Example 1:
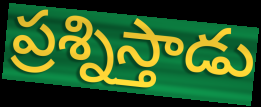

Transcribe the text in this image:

ప్రశ్నిస్తాడు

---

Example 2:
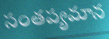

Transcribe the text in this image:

సంతప్యమాన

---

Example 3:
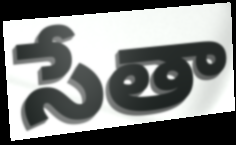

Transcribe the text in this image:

సేతా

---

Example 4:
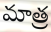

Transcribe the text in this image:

మాత్ర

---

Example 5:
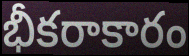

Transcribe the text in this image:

భీకరాకారం